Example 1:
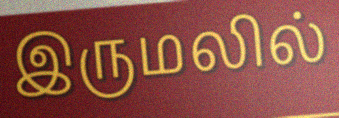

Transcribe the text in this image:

இருமலில்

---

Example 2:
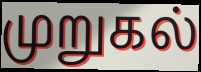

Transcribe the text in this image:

முறுகல்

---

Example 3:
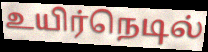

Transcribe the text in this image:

உயிர்நெடில்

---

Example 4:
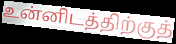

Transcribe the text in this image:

உன்னிடத்திற்குத்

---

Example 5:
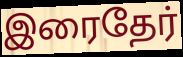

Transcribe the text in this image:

இரைதேர்